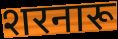
शरनारू